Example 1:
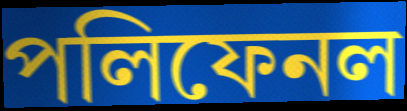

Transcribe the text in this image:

পলিফেনল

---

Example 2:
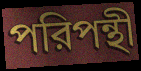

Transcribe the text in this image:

পরিপন্থী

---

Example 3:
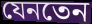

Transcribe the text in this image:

যেনতেন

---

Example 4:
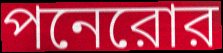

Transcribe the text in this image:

পনেরোর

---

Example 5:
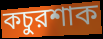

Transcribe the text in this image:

কচুরশাক